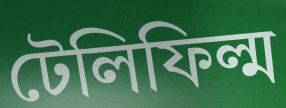
টেলিফিল্ম